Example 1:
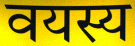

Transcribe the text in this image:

वयस्य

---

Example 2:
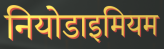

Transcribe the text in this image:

नियोडाइमियम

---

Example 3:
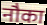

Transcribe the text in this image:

नौका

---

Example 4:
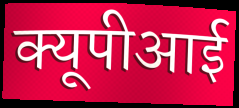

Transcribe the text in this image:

क्यूपीआई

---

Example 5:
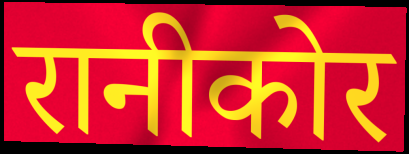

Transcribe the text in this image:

रानीकोर